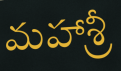
మహాశ్రీ